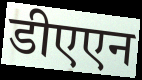
डीएएन